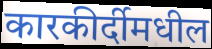
कारकीर्दीमधील